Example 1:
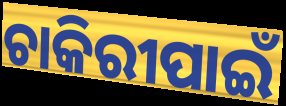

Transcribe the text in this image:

ଚାକିରୀପାଇଁ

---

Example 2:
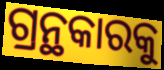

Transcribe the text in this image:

ଗ୍ରନ୍ଥକାରକୁ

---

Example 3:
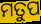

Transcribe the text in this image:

ମତୁପ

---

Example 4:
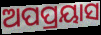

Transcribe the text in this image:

ଅପପ୍ରୟାସ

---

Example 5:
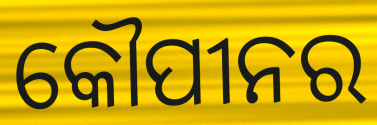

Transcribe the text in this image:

କୌପୀନର